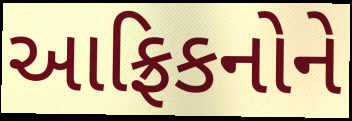
આફ્રિકનોને